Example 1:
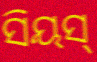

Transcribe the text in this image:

ସିୟସ୍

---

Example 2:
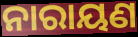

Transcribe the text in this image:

ନାରାୟଣ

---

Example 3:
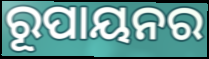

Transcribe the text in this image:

ରୂପାୟନର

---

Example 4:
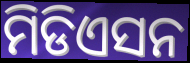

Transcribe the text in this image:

ମିଡିଏସନ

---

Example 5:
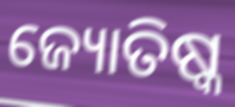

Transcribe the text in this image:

ଜ୍ୟୋତିଷ୍କ